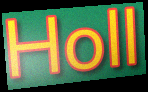
Holl